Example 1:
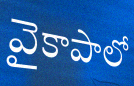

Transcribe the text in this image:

వైకాపాలో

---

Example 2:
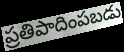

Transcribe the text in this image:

ప్రతిపాదింపబడు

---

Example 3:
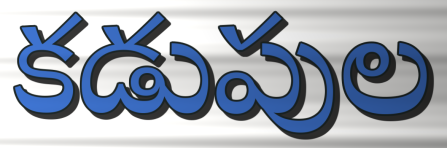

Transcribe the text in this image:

కడుపుల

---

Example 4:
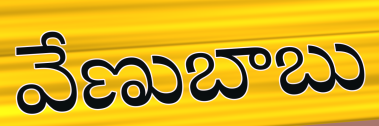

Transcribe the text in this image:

వేణుబాబు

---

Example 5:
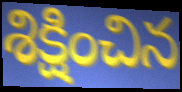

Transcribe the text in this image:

శిక్షించిన